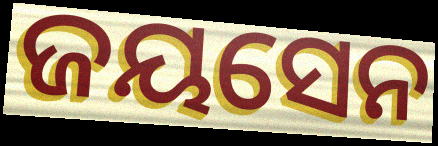
ଜୟସେନ